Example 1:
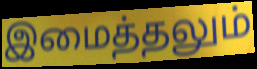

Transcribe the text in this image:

இமைத்தலும்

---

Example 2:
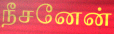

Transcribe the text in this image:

நீசனேன்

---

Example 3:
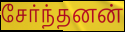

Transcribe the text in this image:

சேர்ந்தனன்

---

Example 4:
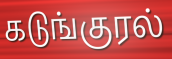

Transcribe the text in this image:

கடுங்குரல்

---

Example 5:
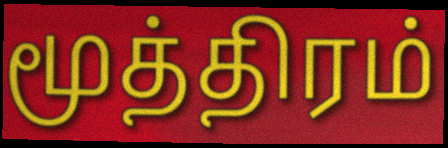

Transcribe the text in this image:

மூத்திரம்